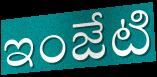
ఇంజేటి